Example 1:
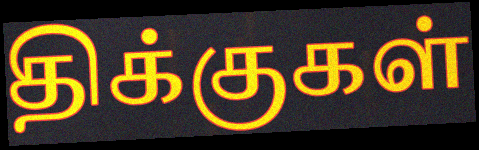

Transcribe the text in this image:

திக்குகள்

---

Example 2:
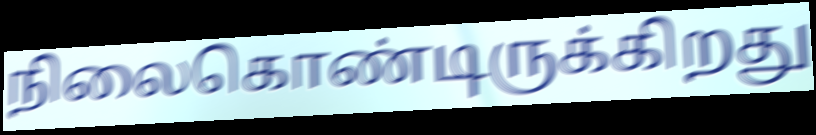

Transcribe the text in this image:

நிலைகொண்டிருக்கிறது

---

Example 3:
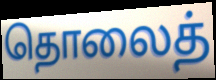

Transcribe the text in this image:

தொலைத்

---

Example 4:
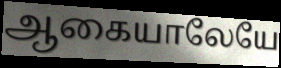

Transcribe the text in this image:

ஆகையாலேயே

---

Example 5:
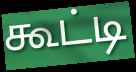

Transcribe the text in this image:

கூட்டி